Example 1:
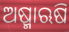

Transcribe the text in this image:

ଅଷ୍ମାଋଷି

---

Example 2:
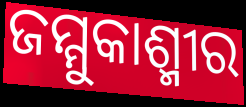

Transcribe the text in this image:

ଜମ୍ମୁକାଶ୍ମୀର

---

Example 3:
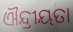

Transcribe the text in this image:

ଐନ୍ଦ୍ରୀୟତା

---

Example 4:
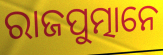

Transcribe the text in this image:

ରାଜପୁତ୍ମାନେ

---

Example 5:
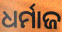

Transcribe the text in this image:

ଧର୍ମାଜ